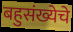
बहुसंख्येचे